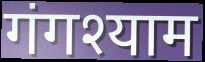
गंगश्याम